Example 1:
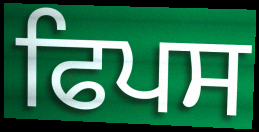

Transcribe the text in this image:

ਫਿਪਸ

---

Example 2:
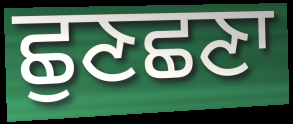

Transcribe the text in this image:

ਛੁਣਛਣਾ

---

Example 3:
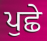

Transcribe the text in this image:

ਪੁਛੇ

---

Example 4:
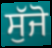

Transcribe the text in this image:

ਸੁੱਜੋ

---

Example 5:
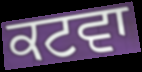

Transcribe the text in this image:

ਕਟਵਾ